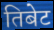
तिबेट